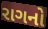
રાગનો